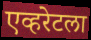
एव्हरेटला